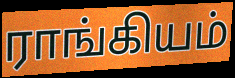
ராங்கியம்